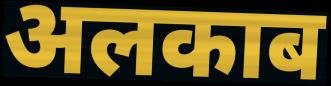
अलकाब